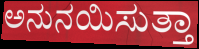
ಅನುನಯಿಸುತ್ತಾ